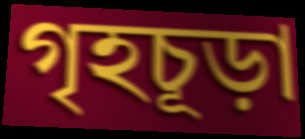
গৃহচূড়া